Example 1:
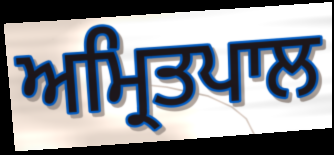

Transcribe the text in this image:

ਅਮ੍ਰਿਤਪਾਲ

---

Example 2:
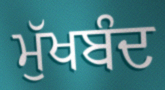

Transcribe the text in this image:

ਮੁੱਖਬੰਦ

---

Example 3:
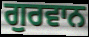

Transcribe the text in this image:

ਗੁਰਵਾਨ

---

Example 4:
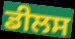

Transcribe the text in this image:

ਡੀਲਸ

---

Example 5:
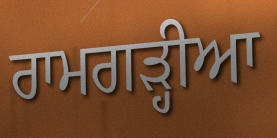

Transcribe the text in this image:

ਰਾਮਗਡ਼੍ਹੀਆ